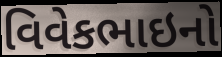
વિવેકભાઇનો